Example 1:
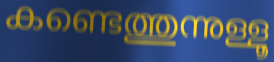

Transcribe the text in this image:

കണ്ടെത്തുന്നുള്ളൂ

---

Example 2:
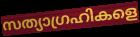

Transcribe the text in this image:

സത്യാഗ്രഹികളെ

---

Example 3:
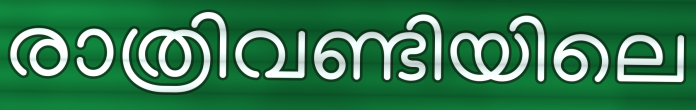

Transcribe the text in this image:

രാത്രിവണ്ടിയിലെ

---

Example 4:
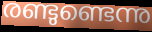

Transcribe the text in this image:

രണ്ടുണ്ടെന്നു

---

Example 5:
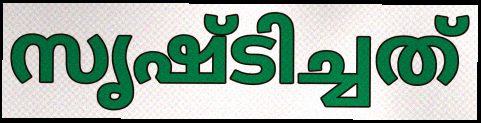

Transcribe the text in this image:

സൃഷ്ടിച്ചത്